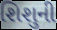
શિશુની